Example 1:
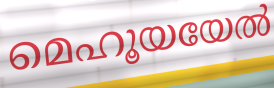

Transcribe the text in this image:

മെഹൂയയേൽ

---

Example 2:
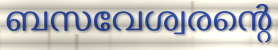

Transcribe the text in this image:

ബസവേശ്വരന്റെ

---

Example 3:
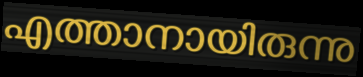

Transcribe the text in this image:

എത്താനായിരുന്നു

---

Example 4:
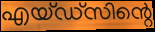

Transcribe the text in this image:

എയ്ഡ്സിന്റെ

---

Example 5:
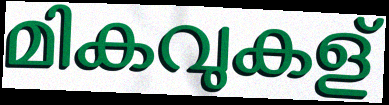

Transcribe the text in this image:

മികവുകള്